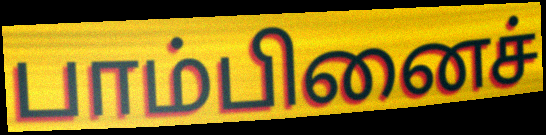
பாம்பினைச்